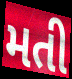
મતી